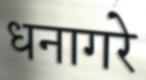
धनागरे